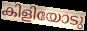
കിളിയോടു